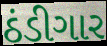
ઠંડીગાર